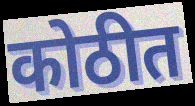
कोठीत